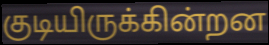
குடியிருக்கின்றன